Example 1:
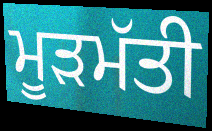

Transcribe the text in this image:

ਮੂੜਮੱਤੀ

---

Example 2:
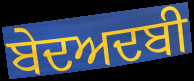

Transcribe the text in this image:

ਬੇਦਅਦਬੀ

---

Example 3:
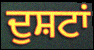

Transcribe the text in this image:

ਦੁਸ਼ਟਾਂ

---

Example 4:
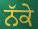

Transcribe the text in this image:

ਨੱਕੇ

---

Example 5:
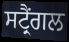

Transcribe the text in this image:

ਸਟ੍ਰੈਂਗਲ